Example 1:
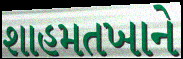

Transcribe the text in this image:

શાહમતખાને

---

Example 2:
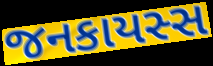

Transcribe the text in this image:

જનકાયસ્સ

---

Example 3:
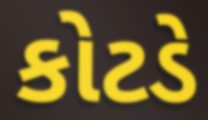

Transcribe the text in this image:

કોટડે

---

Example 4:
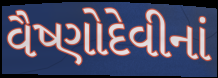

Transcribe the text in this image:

વૈષ્ણોદેવીનાં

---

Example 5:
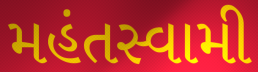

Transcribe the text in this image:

મહંતસ્વામી